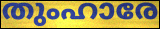
തുംഹാരേ